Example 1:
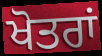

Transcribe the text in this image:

ਖੋਤਰਾਂ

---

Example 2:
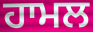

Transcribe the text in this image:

ਹਾਮਲ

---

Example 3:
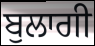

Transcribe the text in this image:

ਬੁਲਾਗੀ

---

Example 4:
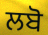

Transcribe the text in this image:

ਲਬੋ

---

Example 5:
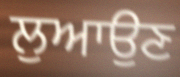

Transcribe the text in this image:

ਲੁਆਉਣ